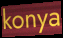
konya